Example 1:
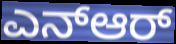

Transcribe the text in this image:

ಎನ್ಆರ್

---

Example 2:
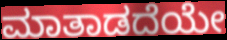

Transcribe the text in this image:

ಮಾತಾಡದೆಯೇ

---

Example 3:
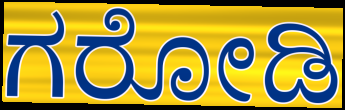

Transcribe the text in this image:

ಗರೋಡಿ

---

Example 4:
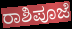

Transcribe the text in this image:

ರಾಶಿಪೂಜೆ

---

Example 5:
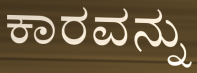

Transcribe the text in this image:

ಕಾರವನ್ನು